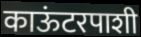
काऊंटरपाशी